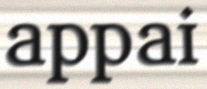
appai